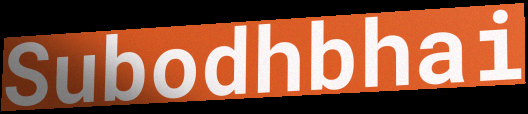
Subodhbhai